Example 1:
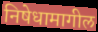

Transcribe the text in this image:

निषेधामागील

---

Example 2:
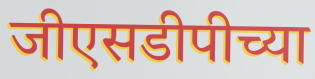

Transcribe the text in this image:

जीएसडीपीच्या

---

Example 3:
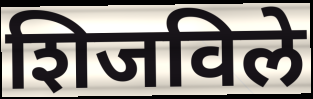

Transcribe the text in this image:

शिजविले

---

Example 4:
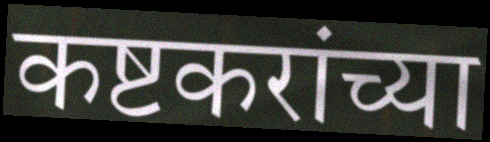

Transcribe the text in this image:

कष्टकरांच्या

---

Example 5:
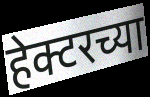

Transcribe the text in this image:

हेक्टरच्या